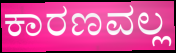
ಕಾರಣವಲ್ಲ